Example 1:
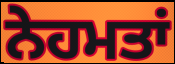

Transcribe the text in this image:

ਨੇਹਮਤਾਂ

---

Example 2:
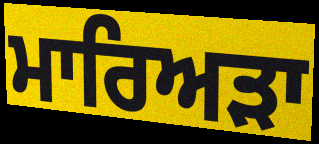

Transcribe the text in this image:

ਮਾਰਿਅੜਾ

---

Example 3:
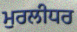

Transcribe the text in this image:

ਮੁਰਲੀਧਰ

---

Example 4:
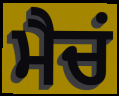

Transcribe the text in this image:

ਮੈਚਂ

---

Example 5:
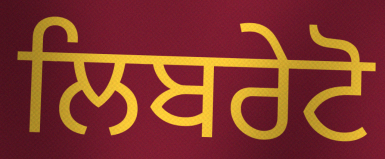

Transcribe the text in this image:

ਲਿਬਰੇਟੋ